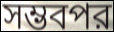
সম্ভবপর